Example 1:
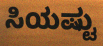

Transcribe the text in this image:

ಸಿಯಷ್ಟು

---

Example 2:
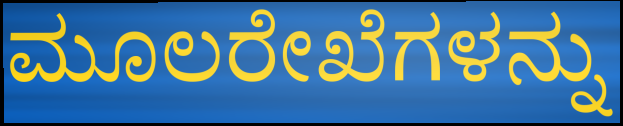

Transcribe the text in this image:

ಮೂಲರೇಖೆಗಳನ್ನು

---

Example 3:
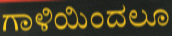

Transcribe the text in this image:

ಗಾಳಿಯಿಂದಲೂ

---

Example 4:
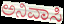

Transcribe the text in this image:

ಅನಿವಾಸಿ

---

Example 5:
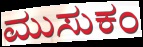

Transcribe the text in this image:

ಮುಸುಕಂ